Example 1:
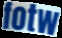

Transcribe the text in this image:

fotw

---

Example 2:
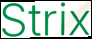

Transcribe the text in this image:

Strix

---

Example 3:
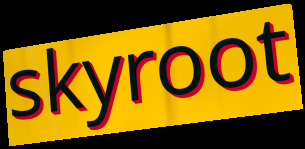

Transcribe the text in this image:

skyroot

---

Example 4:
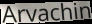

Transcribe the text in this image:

Arvachin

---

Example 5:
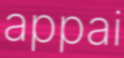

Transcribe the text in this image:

appai